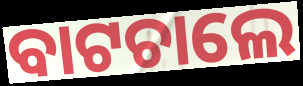
ବାଟଚାଲେ